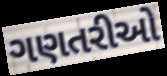
ગણતરીઓ